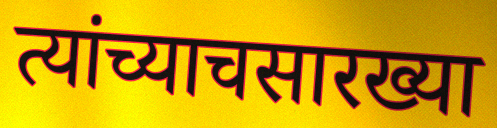
त्यांच्याचसारख्या